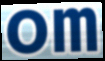
om